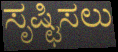
ಸೃಷ್ಟಿಸಲು